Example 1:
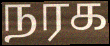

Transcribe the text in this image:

நரக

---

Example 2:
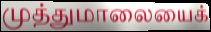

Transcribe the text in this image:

முத்துமாலையைக்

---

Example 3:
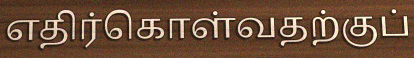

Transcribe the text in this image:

எதிர்கொள்வதற்குப்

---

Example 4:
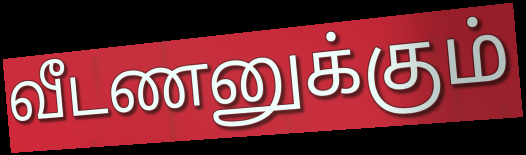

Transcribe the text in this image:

வீடணனுக்கும்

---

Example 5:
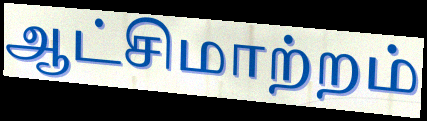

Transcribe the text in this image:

ஆட்சிமாற்றம்